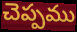
చెప్పము